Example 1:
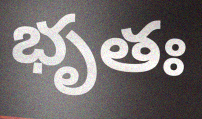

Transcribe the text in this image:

భృతః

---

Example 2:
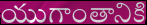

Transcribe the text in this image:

యుగాంతానికి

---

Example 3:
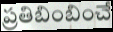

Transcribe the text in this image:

ప్రతిబింబించే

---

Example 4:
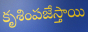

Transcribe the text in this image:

కృశింపజేస్తాయి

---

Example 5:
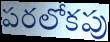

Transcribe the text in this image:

పరలోకపు